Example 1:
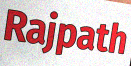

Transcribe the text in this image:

Rajpath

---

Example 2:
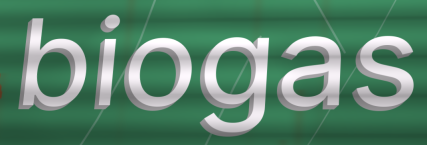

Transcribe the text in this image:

biogas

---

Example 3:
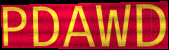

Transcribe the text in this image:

PDAWD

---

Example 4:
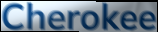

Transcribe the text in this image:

Cherokee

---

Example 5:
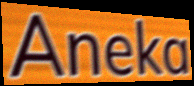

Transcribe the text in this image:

Aneka